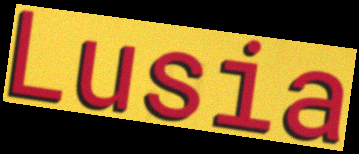
Lusia